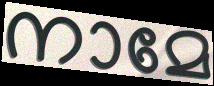
നാമേ